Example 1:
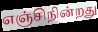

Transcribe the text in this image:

எஞ்சிநின்றது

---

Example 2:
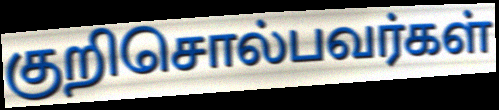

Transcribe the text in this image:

குறிசொல்பவர்கள்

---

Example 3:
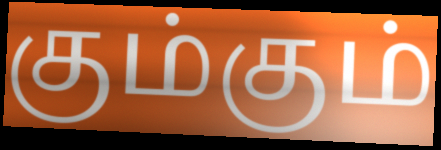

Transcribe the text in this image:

கும்கும்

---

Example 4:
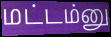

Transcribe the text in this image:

மட்டம்னு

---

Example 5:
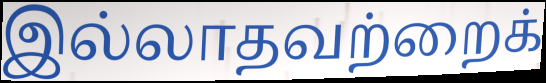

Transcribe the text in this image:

இல்லாதவற்றைக்